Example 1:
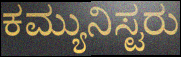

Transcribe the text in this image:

ಕಮ್ಯುನಿಸ್ಟರು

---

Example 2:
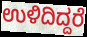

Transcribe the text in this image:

ಉಳಿದಿದ್ದರೆ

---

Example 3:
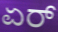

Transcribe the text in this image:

ಏರ್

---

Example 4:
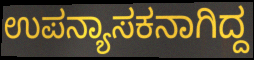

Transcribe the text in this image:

ಉಪನ್ಯಾಸಕನಾಗಿದ್ದ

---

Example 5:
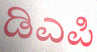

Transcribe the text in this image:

ಡಿಎಪಿ